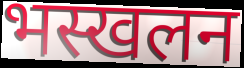
भस्खलन